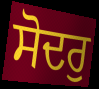
ਸੋਦਰੁ